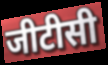
जीटीसी